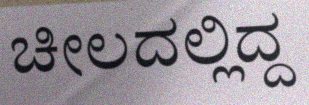
ಚೀಲದಲ್ಲಿದ್ದ